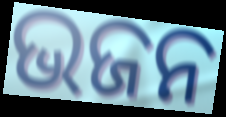
ଭଜନ